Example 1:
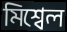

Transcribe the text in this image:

মিশ্বেল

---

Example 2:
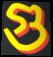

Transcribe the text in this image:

গু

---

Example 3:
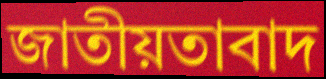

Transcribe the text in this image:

জাতীয়তাবাদ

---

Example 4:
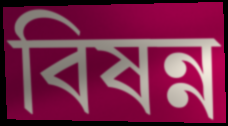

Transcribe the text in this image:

বিষন্ন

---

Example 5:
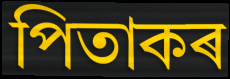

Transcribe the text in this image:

পিতাকৰ